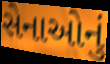
સેનાઓનું